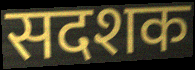
सदशक